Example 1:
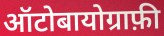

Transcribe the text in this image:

ऑटोबायोग्राफ़ी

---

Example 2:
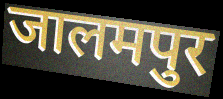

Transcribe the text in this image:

जालमपुर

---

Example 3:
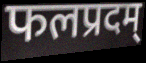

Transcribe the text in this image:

फलप्रदम्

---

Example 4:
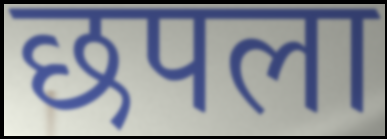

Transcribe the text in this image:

छपला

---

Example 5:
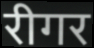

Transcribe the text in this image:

रीगर